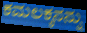
ಕಮಲಕ್ಕನನ್ನು